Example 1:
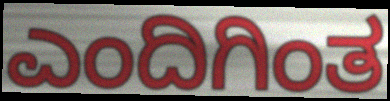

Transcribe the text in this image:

ಎಂದಿಗಿಂತ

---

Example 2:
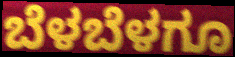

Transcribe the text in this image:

ಬೆಳಬೆಳಗೂ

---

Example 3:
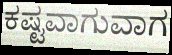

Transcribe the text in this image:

ಕಷ್ಟವಾಗುವಾಗ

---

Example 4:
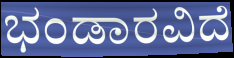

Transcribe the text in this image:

ಭಂಡಾರವಿದೆ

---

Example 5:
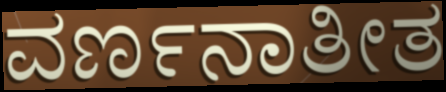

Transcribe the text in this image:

ವರ್ಣನಾತೀತ